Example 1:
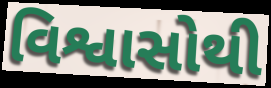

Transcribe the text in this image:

વિશ્વાસોથી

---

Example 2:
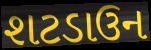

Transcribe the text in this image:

શટડાઉન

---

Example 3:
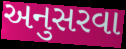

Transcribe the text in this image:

અનુસરવા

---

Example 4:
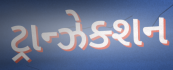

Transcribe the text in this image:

ટ્રાન્ઝેક્શન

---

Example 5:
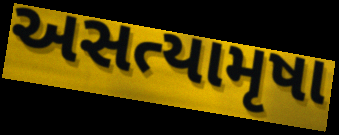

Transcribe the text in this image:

અસત્યામૃષા